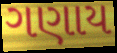
ગણાય